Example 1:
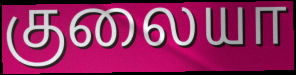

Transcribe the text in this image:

குலையா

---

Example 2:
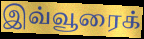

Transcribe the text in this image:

இவ்வூரைக்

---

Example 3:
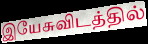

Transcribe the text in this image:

இயேசுவிடத்தில்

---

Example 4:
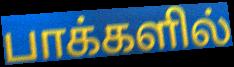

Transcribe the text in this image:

பாக்களில்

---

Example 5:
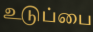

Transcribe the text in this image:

உடுப்பை